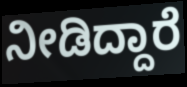
ನೀಡಿದ್ದಾರೆ